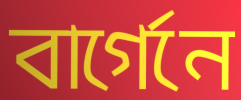
বার্গেনে